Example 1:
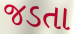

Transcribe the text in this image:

જડતા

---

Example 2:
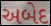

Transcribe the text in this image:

અબેદ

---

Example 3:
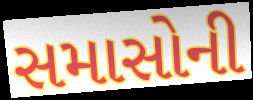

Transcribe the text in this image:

સમાસોની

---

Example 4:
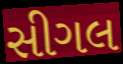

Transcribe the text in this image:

સીગલ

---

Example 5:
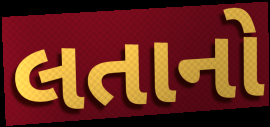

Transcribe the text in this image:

લતાનો